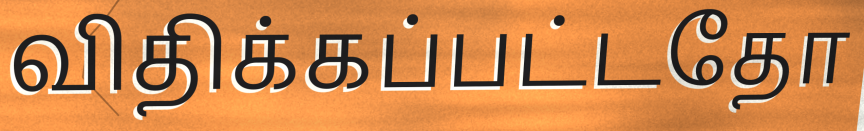
விதிக்கப்பட்டதோ